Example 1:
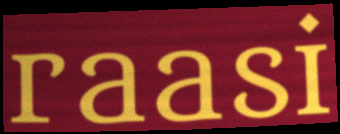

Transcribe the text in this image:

raasi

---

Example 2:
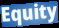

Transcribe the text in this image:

Equity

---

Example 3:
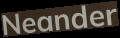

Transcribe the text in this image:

Neander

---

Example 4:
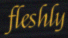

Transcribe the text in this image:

fleshly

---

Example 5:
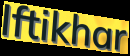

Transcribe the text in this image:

Iftikhar